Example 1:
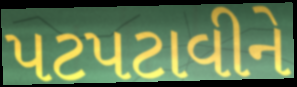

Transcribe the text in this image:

પટપટાવીને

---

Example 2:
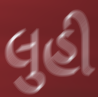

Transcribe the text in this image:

લુહી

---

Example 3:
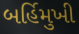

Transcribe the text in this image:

બર્હિમુખી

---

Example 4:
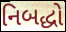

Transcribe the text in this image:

નિબદ્ધો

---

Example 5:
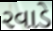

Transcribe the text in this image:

રવાડે